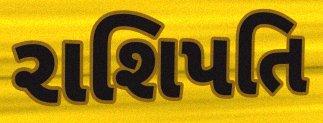
રાશિપતિ